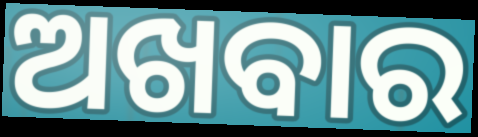
ଅଖବାର